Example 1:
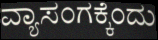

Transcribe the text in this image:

ವ್ಯಾಸಂಗಕ್ಕೆಂದು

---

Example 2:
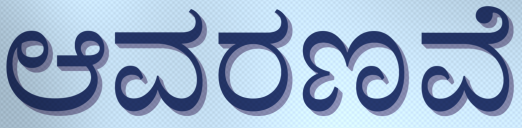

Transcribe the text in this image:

ಆವರಣವೆ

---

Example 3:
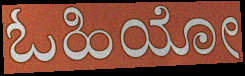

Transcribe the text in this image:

ಓಹಿಯೋ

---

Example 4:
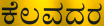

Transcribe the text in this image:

ಕೆಲವದರ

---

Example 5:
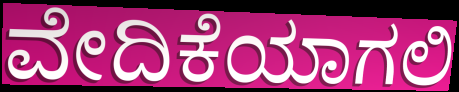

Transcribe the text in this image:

ವೇದಿಕೆಯಾಗಲಿ